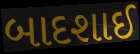
બાદશાઈ